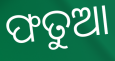
ଫତୁଆ